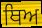
ਥਿਅ